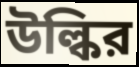
উল্কির